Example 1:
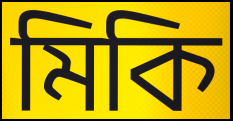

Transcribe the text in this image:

মিকি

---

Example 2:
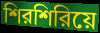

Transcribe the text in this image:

শিরশিরিয়ে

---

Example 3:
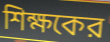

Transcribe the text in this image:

শিক্ষকের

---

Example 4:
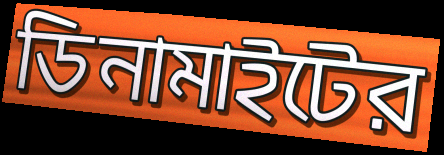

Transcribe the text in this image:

ডিনামাইটের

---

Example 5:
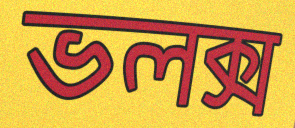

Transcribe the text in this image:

ভলক্স